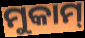
ମୁକାମ୍